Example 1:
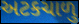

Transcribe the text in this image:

અટકચાળુ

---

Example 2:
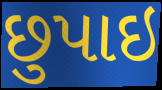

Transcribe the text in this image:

છુપાઇ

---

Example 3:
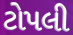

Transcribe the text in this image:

ટોપલી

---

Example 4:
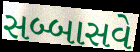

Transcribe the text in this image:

સબ્બાસવે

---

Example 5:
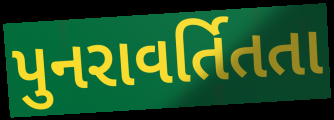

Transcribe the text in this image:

પુનરાવર્તિતતા